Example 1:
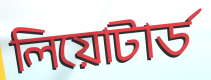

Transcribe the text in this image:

লিয়োটার্ড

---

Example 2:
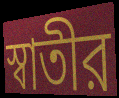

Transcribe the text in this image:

স্বাতীর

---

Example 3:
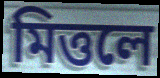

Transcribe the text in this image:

মিত্তলে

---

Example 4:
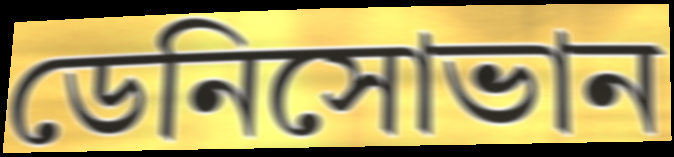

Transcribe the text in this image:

ডেনিসোভান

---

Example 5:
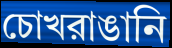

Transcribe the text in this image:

চোখরাঙানি